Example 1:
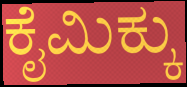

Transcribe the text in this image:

ಕೈಮಿಕ್ಕು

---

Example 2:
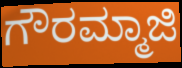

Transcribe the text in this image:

ಗೌರಮ್ಮಾಜಿ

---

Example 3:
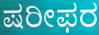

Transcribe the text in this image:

ಷರೀಫರ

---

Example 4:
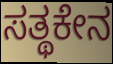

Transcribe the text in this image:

ಸತ್ಥಕೇನ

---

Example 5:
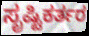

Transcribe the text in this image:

ಸೃಷ್ಟಿಕರ್ತರ